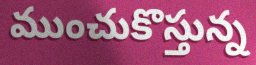
ముంచుకొస్తున్న